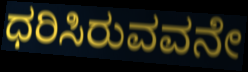
ಧರಿಸಿರುವವನೇ